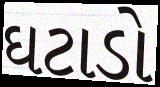
ઘટાડો